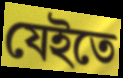
যেইতে